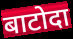
बाटोदा